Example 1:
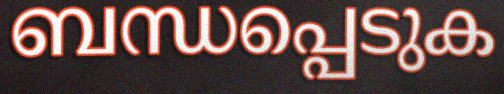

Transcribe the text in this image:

ബന്ധപ്പെടുക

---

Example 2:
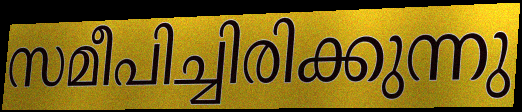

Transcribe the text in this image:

സമീപിച്ചിരിക്കുന്നു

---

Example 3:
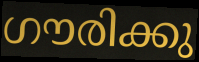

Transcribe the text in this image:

ഗൗരിക്കു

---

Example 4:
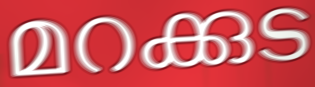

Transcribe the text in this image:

മറക്കുട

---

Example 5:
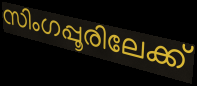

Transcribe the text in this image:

സിംഗപ്പൂരിലേക്ക്